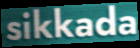
sikkada